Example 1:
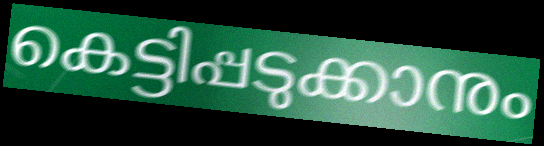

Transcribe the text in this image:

കെട്ടിപ്പടുക്കാനും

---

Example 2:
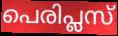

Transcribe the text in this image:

പെരിപ്ലസ്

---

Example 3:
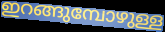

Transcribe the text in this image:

ഇറങ്ങുമ്പോഴുള്ള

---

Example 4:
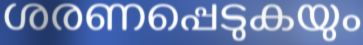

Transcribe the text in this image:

ശരണപ്പെടുകയും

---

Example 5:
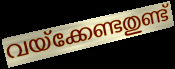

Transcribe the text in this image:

വയ്‌ക്കേണ്ടതുണ്ട്